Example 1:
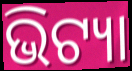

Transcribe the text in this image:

ଭିଟ୍ୟା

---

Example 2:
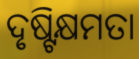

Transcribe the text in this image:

ଦୃଷ୍ଟିକ୍ଷମତା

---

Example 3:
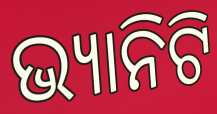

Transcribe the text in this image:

ଭ୍ୟାନିଟି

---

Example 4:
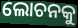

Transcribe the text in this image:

ଲୋଚନକୁ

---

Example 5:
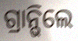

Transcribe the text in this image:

ଗ୍ରାନ୍ଭିଲେ